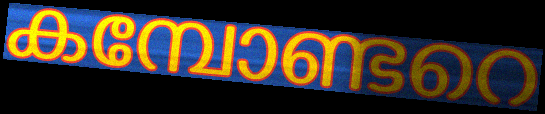
കമ്പോണ്ടറെ